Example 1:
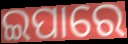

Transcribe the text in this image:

ଇପାରେ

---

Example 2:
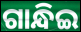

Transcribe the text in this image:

ଗାନ୍ଧିଇ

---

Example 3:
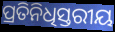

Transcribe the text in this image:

ପ୍ରତିନିଧିସ୍ତରୀୟ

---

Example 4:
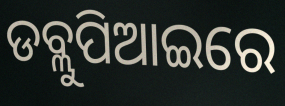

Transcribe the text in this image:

ଡବ୍ଲୁପିଆଇରେ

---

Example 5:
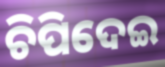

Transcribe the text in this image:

ଚିପିଦେଇ